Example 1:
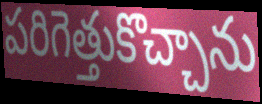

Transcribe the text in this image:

పరిగెత్తుకొచ్చాను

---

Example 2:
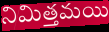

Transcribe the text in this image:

నిమిత్తమయి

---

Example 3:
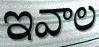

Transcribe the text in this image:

ఇవాల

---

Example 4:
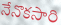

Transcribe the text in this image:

నేనొకసారి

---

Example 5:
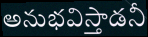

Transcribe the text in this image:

అనుభవిస్తాడనీ